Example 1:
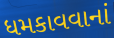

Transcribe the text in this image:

ધમકાવવાનાં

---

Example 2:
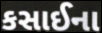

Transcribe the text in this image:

કસાઈના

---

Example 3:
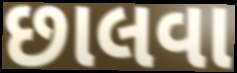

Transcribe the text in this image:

છાલવા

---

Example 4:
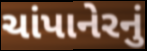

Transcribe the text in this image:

ચાંપાનેરનું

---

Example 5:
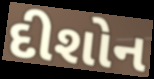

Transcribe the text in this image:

દીશોન